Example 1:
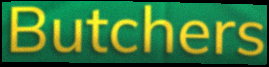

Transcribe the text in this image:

Butchers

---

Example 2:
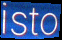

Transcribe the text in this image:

isto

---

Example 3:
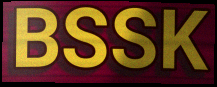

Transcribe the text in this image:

BSSK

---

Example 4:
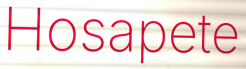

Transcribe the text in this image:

Hosapete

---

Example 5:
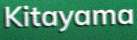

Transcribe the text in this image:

Kitayama